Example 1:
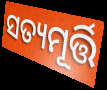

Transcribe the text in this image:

ସତ୍ୟମୂର୍ତ୍ତି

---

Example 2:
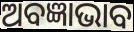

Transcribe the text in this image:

ଅବଜ୍ଞାଭାବ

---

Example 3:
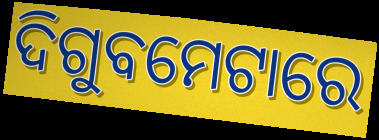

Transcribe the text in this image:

ଦିଗୁବମେଟାରେ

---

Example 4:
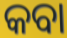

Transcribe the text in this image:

କବା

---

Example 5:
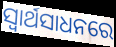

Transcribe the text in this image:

ସ୍ବାର୍ଥସାଧନରେ